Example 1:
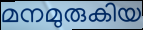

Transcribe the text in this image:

മനമുരുകിയ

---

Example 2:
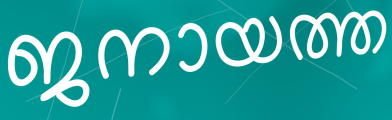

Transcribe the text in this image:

ജനായത്ത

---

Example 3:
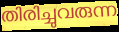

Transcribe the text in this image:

തിരിച്ചുവരുന്ന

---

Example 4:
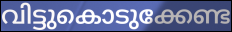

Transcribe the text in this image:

വിട്ടുകൊടുക്കേണ്ട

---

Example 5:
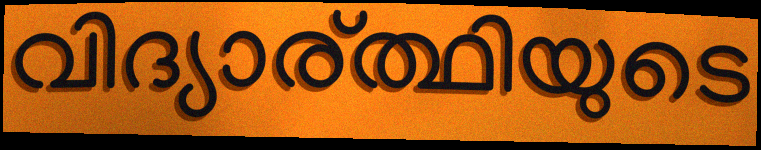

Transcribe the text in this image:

വിദ്യാര്ത്ഥിയുടെ